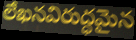
లేఖనవిరుద్ధమైన